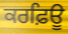
ਕਰਫ਼ਿਊ